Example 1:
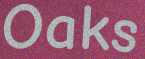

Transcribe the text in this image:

Oaks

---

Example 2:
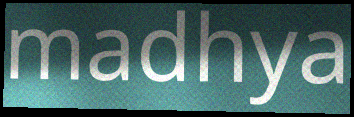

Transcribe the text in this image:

madhya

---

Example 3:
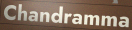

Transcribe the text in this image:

Chandramma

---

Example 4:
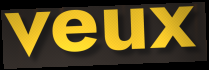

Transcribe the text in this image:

veux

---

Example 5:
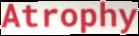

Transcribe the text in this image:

Atrophy